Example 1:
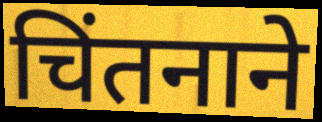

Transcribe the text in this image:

चिंतनाने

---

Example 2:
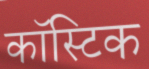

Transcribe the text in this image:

कॉस्टिक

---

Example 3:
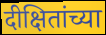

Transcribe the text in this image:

दीक्षितांच्या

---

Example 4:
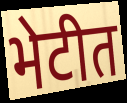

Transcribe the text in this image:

भेटीत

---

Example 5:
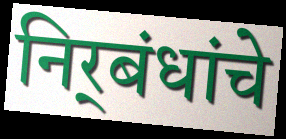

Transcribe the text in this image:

निर्बंधांचे